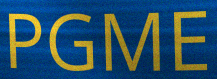
PGME